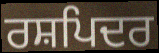
ਰਸ਼ਪਿਦਰ